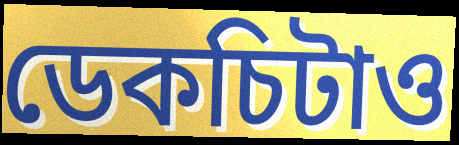
ডেকচিটাও